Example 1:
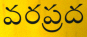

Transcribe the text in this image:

వరప్రద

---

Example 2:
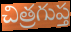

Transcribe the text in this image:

చిత్రగుప్త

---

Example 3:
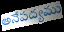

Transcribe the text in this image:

అనేపద్యము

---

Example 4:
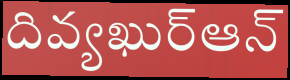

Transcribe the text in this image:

దివ్యఖుర్ఆన్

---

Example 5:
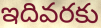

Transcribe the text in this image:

ఇదివరకు